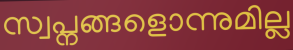
സ്വപ്നങ്ങളൊന്നുമില്ല